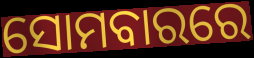
ସୋମବାରରେ